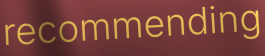
recommending